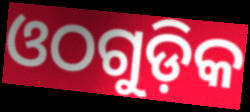
ଓଠଗୁଡ଼ିକ